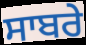
ਸਾਬਰੇ